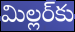
మిల్లర్‌కు